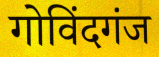
गोविंदगंज